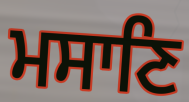
ਮਸਾਣਿ